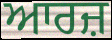
ਆਰਜ਼